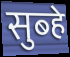
सुब्हे